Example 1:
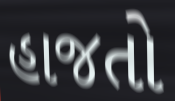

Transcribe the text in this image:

હાજતો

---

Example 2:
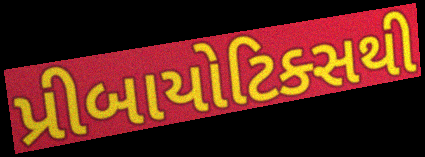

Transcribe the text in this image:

પ્રીબાયોટિક્સથી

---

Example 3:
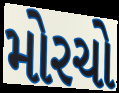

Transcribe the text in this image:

મોરચો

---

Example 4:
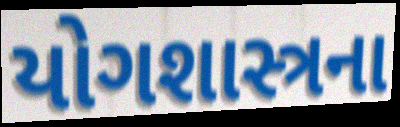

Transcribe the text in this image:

યોગશાસ્ત્રના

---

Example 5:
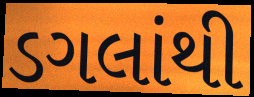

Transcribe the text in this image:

ડગલાંથી